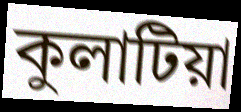
কুলাটিয়া